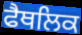
ਫੈਥਲਿਕ